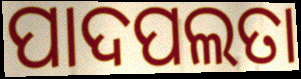
ପାଦପଲତା